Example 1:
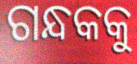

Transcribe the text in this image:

ଗନ୍ଧକକୁ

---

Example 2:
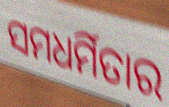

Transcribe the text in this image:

ସମଧର୍ମିତାର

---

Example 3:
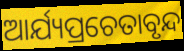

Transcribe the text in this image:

ଆର୍ଯ୍ୟପ୍ରଚେତାବୃନ୍ଦ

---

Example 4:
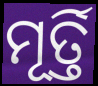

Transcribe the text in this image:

ମୂର୍ତ୍ତି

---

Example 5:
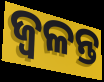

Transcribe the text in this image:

ଜ୍ବଳନ୍ତ